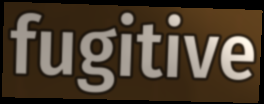
fugitive